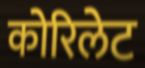
कोरिलेट